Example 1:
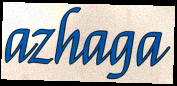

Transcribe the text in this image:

azhaga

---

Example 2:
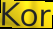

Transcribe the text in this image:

Kor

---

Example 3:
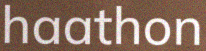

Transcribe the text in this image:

haathon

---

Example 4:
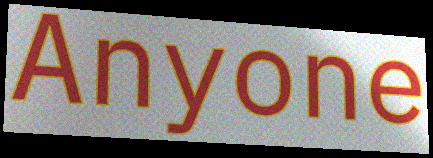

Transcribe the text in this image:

Anyone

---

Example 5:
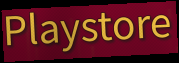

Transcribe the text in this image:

Playstore